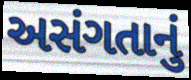
અસંગતાનું